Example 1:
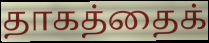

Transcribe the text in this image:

தாகத்தைக்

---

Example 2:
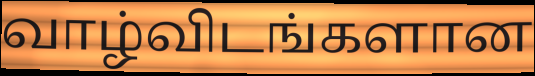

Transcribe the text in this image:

வாழ்விடங்களான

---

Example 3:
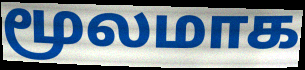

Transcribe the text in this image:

மூலமாக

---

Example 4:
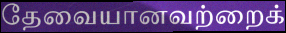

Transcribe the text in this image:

தேவையானவற்றைக்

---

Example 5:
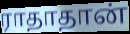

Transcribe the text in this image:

ராதாதான்